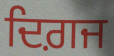
ਦਿਗ਼ਜ